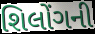
શિલોંગની